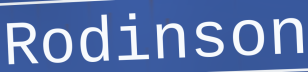
Rodinson